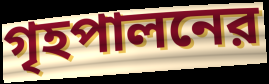
গৃহপালনের